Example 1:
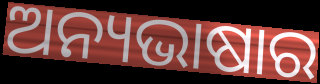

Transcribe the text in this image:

ଅନ୍ୟଭାଷାର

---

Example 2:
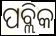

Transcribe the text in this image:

ପବ୍ଲିକ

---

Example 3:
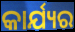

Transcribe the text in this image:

କାର୍ଯ୍ୟର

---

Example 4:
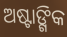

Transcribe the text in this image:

ଅଷ୍ଟାଙ୍ଗିକ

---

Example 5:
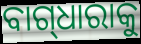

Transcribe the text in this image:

ବାଗ୍‌ଧାରାକୁ